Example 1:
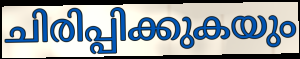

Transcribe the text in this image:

ചിരിപ്പിക്കുകയും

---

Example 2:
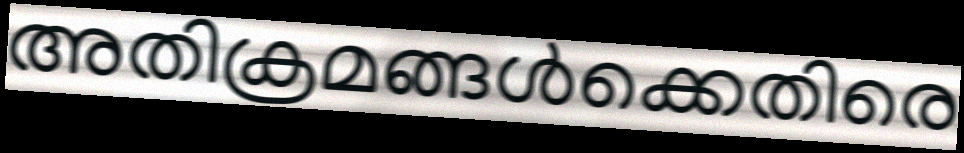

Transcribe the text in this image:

അതിക്രമങ്ങൾക്കെതിരെ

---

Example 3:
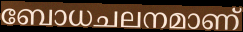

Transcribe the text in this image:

ബോധചലനമാണ്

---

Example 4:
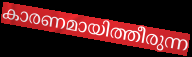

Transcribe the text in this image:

കാരണമായിത്തീരുന്ന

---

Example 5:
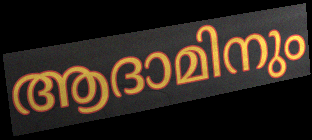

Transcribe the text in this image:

ആദാമിനും